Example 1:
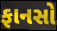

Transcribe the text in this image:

ફાનસો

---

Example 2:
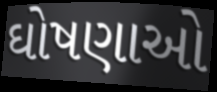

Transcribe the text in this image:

ઘોષણાઓ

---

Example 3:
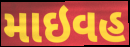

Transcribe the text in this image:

માઇવહ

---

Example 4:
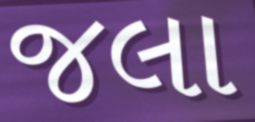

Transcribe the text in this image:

જલા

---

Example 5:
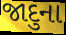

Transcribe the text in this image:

જાદુના